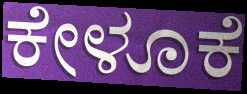
ಕೇಳೂಕೆ